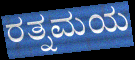
ರತ್ನಮಯ